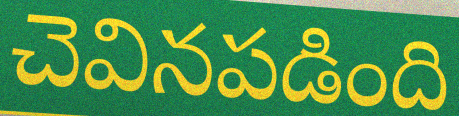
చెవినపడింది